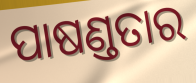
ପାଷଣ୍ଡତାର